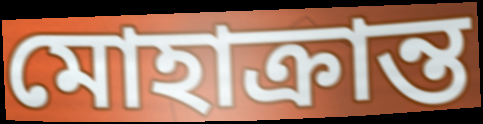
মোহাক্রান্ত